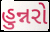
હુન્નરો